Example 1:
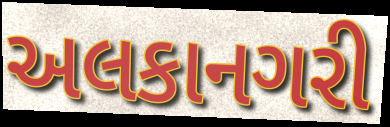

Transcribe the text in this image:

અલકાનગરી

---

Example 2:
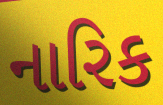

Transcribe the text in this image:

નારિક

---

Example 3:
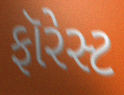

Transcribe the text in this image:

ફૉરેસ્ટ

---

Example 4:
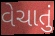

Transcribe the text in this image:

વેચાતું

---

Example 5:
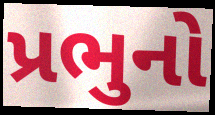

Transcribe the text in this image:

પ્રભુનો